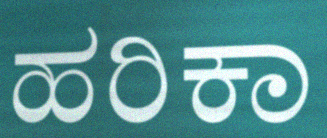
ಹರಿಕಾ